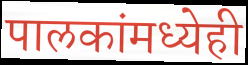
पालकांमध्येही